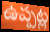
ఉప్పట్ల